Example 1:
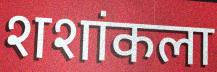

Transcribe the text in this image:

शशांकला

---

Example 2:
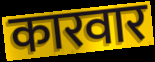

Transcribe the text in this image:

कारवार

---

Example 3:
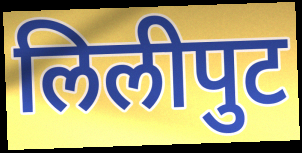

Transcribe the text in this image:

लिलीपुट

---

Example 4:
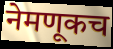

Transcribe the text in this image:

नेमणूकच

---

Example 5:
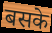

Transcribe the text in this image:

बसके